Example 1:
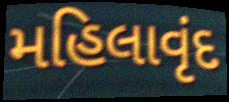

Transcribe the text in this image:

મહિલાવૃંદ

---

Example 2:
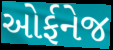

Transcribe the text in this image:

ઓર્ફનેજ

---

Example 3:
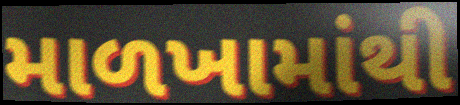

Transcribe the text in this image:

માળખામાંથી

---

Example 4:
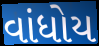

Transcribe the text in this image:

વાંધોય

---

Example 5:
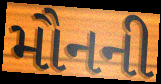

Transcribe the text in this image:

મૌનની